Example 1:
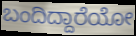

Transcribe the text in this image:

ಬಂದಿದ್ದಾರೆಯೋ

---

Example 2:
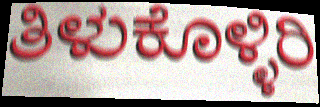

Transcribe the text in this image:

ತಿಳುಕೊಳ್ಳಿರಿ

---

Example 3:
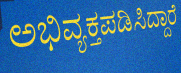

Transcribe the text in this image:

ಅಭಿವ್ಯಕ್ತಪಡಿಸಿದ್ದಾರೆ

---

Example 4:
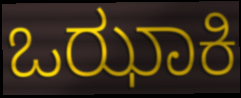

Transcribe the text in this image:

ಒಝಾಕಿ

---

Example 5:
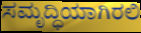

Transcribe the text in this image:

ಸಮೃದ್ಧಿಯಾಗಿರಲಿ